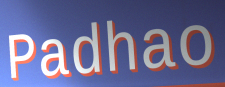
Padhao